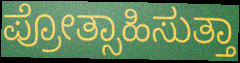
ಪ್ರೋತ್ಸಾಹಿಸುತ್ತಾ